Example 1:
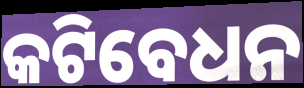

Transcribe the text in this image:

କଟିବେଧନ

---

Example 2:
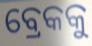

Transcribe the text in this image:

ବ୍ରେକକୁ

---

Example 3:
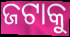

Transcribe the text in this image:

ଜଟାକୁ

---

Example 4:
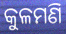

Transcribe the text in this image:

କୁଳମଣି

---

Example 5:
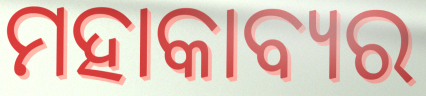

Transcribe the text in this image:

ମହାକାବ୍ୟର